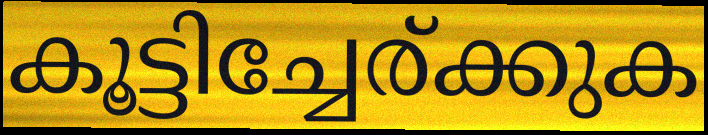
കൂട്ടിച്ചേര്ക്കുക